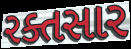
રક્તસાર